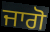
ਜਾਗੋ